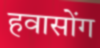
हवासोंग